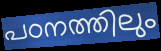
പഠനത്തിലും